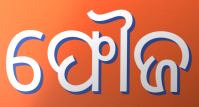
ଫୌଜ